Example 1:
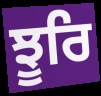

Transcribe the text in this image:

ਝੂਰਿ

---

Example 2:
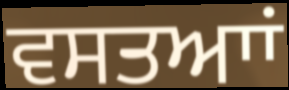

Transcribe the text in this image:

ਵਸਤਆਾਂ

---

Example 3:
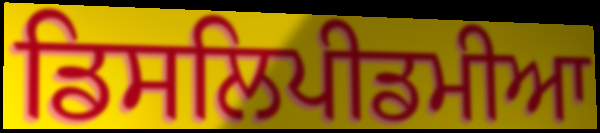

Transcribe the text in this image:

ਡਿਸਲਿਪੀਡਮੀਆ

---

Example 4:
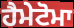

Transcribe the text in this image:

ਹੈਮੇਟੋਮਾ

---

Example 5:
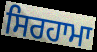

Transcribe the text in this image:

ਸਿਰਹਾਮਾ